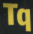
Tq